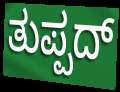
ತುಪ್ಪದ್